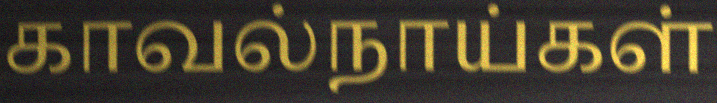
காவல்நாய்கள்